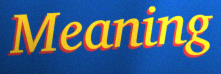
Meaning